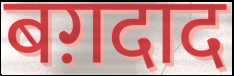
बग़दाद